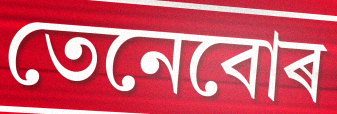
তেনেবোৰ